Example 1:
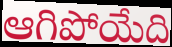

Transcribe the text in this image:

ఆగిపోయేది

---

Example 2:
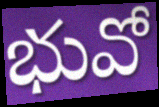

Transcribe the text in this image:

భువో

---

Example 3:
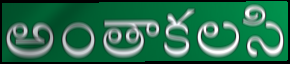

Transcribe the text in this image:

అంతాకలసి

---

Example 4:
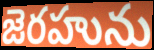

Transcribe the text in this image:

జెరహును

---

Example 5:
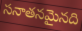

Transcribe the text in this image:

సనాతనమైనది